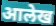
आलेख